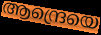
ആന്ദ്രെയെ